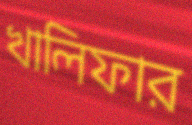
খালিফার